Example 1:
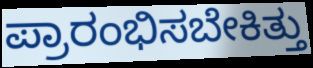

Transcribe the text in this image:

ಪ್ರಾರಂಭಿಸಬೇಕಿತ್ತು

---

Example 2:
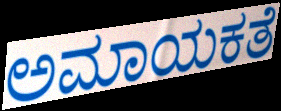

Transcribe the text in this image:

ಅಮಾಯಕತೆ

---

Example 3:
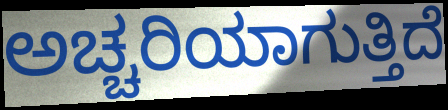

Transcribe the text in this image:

ಅಚ್ಚರಿಯಾಗುತ್ತಿದೆ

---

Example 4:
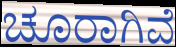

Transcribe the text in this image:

ಚೂರಾಗಿವೆ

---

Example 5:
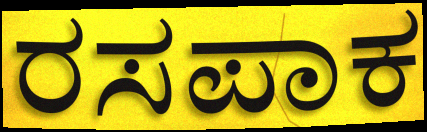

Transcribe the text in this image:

ರಸಪಾಕ